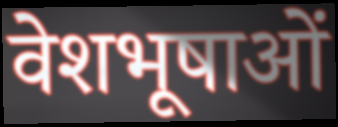
वेशभूषाओं